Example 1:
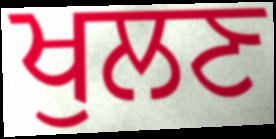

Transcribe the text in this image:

ਖੁਲਣ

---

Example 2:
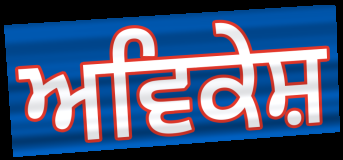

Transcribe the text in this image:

ਅਵਿਕੇਸ਼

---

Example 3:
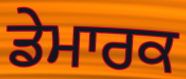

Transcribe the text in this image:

ਡੇਮਾਰਕ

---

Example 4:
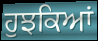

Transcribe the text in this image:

ਹੁਝਕਿਆਂ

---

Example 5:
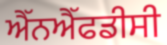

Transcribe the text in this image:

ਐੱਨਐੱਫਡੀਸੀ